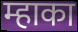
म्हाका